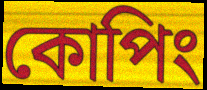
কোপিং